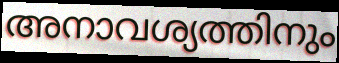
അനാവശ്യത്തിനും